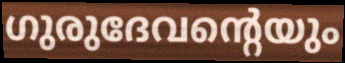
ഗുരുദേവന്റെയും